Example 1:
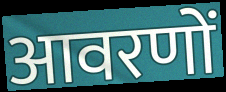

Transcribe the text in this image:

आवरणों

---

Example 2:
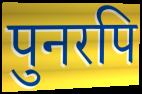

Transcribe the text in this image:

पुनरपि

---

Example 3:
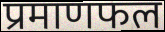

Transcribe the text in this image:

प्रमाणफल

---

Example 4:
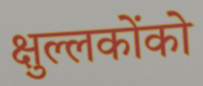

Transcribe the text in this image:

क्षुल्लकोंको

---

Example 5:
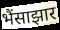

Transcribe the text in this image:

भैंसाझार